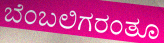
ಬೆಂಬಲಿಗರಂತೂ